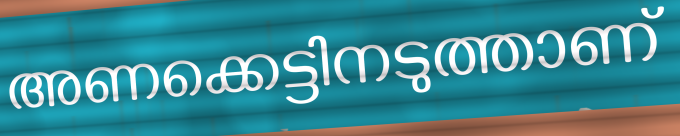
അണക്കെട്ടിനടുത്താണ്